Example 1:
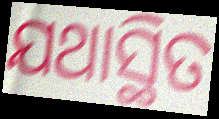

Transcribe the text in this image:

ଯଥାସ୍ଥିତ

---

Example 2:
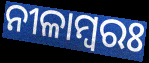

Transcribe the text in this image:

ନୀଳାମ୍ବରଃ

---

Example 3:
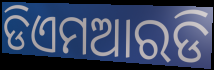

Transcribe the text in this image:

ଡିଏମଆରଡି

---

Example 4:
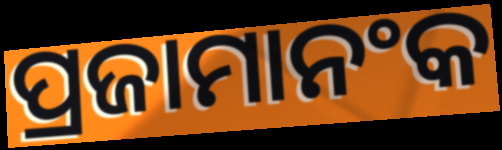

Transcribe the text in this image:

ପ୍ରଜାମାନଂକ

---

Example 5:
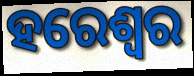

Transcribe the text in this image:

ହରେଶ୍ୱର